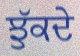
ਝੁੱਕਦੇ